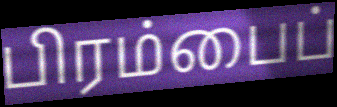
பிரம்பைப்